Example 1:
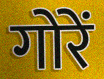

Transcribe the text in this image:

गोरें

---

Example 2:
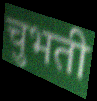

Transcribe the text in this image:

चुभती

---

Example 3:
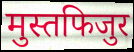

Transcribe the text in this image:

मुस्तफिजुर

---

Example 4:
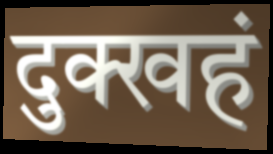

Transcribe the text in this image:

दुक्खहं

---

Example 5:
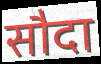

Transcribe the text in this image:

सौदा